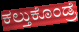
ಕಲ್ತುಕೊಂಡ್ರೆ